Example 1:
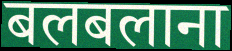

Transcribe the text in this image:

बलबलाना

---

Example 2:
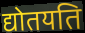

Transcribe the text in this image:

द्योतयति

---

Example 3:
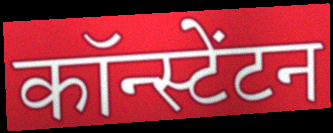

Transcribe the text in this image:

कॉन्स्टेंटन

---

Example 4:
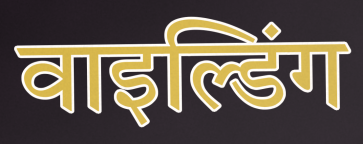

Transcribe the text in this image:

वाइल्डिंग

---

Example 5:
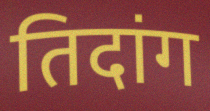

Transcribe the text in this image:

तिदांग